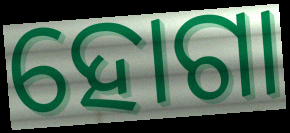
ହୋଗା